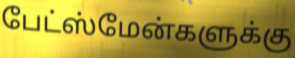
பேட்ஸ்மேன்களுக்கு